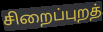
சிறைப்புறத்